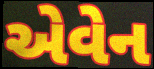
એવેન